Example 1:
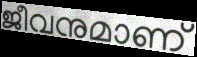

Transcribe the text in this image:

ജീവനുമാണ്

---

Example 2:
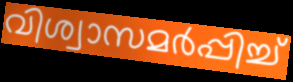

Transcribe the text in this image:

വിശ്വാസമർപ്പിച്ച്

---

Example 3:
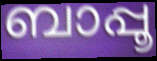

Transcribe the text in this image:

ബാപ്പൂ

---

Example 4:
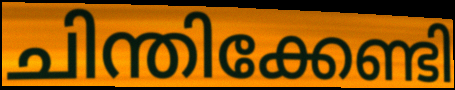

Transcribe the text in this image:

ചിന്തിക്കേണ്ടി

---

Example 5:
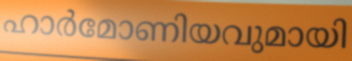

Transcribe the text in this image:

ഹാർമോണിയവുമായി